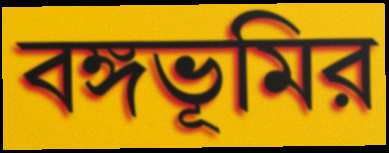
বঙ্গভূমির